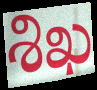
శిఖ